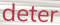
deter